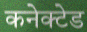
कनेक्टेड